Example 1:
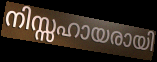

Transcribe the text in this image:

നിസ്സഹായരായി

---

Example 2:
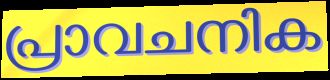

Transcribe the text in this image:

പ്രാവചനിക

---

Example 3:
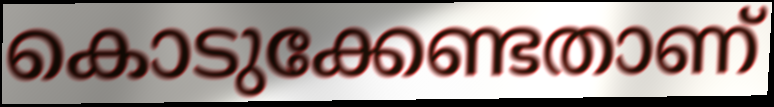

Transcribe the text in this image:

കൊടുക്കേണ്ടതാണ്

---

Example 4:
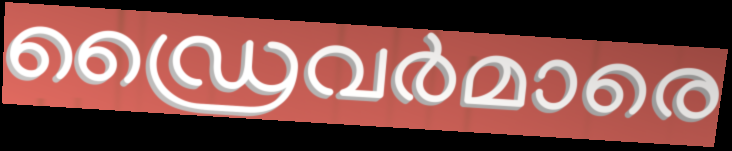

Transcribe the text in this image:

ഡ്രൈവർമാരെ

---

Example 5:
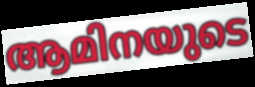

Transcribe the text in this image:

ആമിനയുടെ